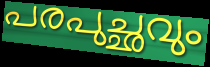
പരപുച്ഛവും